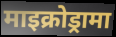
माइक्रोड्रामा